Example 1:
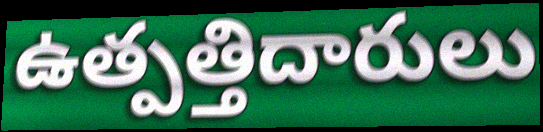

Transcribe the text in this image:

ఉత్పత్తిదారులు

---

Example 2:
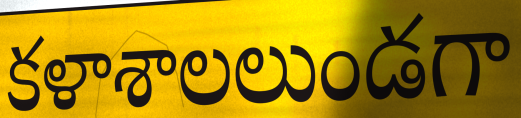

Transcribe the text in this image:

కళాశాలలుండగా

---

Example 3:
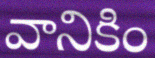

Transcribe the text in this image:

వానికిం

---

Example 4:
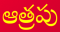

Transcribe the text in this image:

ఆత్రపు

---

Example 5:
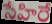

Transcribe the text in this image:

సేహిరే